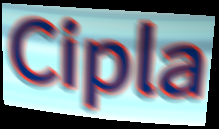
Cipla